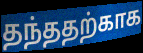
தந்ததற்காக